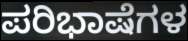
ಪರಿಭಾಷೆಗಳ